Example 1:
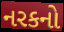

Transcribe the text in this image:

નરકનો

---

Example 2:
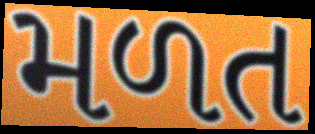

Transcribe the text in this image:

મળત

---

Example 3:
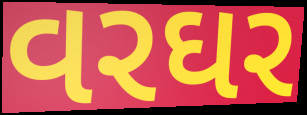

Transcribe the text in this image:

વરઘર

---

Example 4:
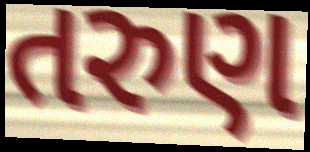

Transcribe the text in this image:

તરુણ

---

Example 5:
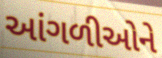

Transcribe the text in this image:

આંગળીઓને